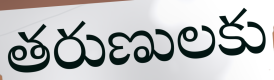
తరుణులకు